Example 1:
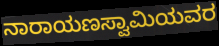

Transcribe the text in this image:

ನಾರಾಯಣಸ್ವಾಮಿಯವರ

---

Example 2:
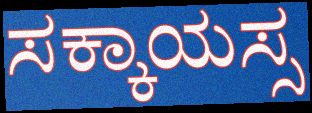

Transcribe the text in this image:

ಸಕ್ಕಾಯಸ್ಸ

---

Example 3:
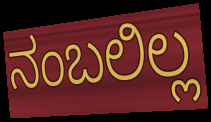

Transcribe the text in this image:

ನಂಬಲಿಲ್ಲ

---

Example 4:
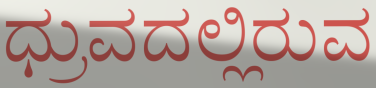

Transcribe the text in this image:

ಧ್ರುವದಲ್ಲಿರುವ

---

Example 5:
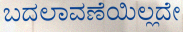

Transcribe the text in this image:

ಬದಲಾವಣೆಯಿಲ್ಲದೇ